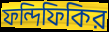
ফন্দিফিকির